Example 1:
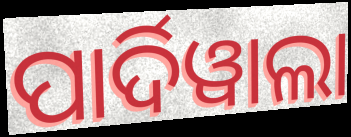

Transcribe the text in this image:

ପାର୍ଦିୱାଲା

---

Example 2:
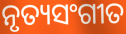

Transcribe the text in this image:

ନୃତ୍ୟସଂଗୀତ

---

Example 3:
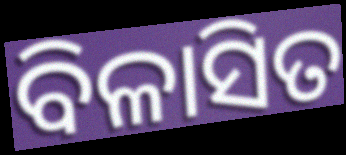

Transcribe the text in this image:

ବିଳାସିତ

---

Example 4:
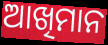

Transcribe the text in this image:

ଆଖିମାନ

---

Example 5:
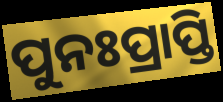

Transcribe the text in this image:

ପୁନଃପ୍ରାପ୍ତି